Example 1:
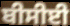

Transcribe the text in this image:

ਬੀਸੀਈ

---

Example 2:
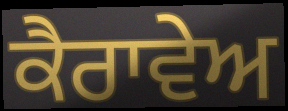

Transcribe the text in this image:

ਕੈਰਾਵੇਅ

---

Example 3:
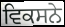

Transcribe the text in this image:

ਵਿਕਸਨੇ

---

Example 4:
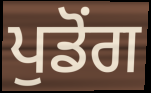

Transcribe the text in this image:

ਪੁਡੋਂਗ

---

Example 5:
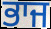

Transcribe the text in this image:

ਭਾਜ